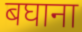
बघाना